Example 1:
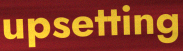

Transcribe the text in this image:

upsetting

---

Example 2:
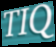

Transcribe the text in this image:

TIQ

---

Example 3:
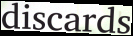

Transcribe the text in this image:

discards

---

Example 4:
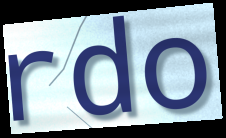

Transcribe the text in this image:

rdo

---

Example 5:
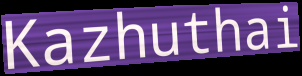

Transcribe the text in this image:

Kazhuthai